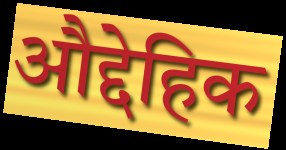
औद्देहिक